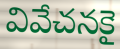
వివేచనకై